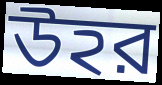
উহর